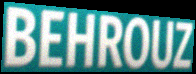
BEHROUZ